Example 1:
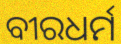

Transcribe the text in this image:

ବୀରଧର୍ମ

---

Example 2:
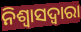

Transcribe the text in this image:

ନିଶ୍ୱାସଦ୍ୱାରା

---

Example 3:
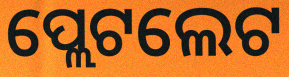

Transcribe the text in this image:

ପ୍ଲେଟଲେଟ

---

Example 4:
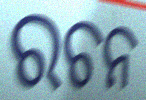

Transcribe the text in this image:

ରଚନ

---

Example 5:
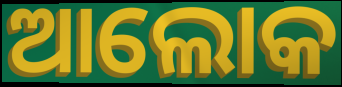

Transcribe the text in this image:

ଆଲୋକ